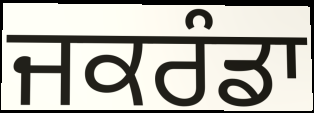
ਜਕਰੰਡਾ